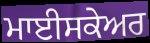
ਮਾਈਸਕੇਅਰ